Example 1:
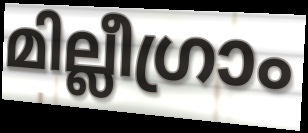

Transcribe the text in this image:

മില്ലീഗ്രാം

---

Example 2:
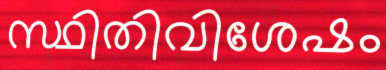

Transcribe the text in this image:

സ്ഥിതിവിശേഷം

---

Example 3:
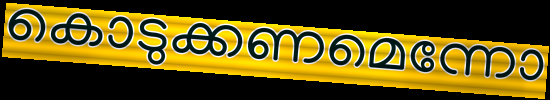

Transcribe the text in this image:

കൊടുക്കണമെന്നോ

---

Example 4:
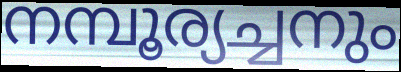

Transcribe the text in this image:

നമ്പൂര്യച്ചനും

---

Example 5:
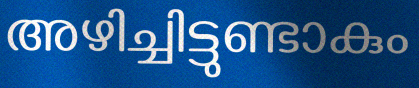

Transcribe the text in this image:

അഴിച്ചിട്ടുണ്ടാകും